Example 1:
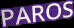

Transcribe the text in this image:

PAROS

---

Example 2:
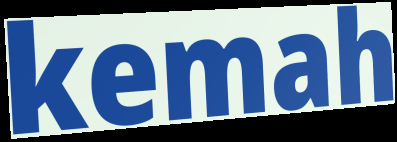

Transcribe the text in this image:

kemah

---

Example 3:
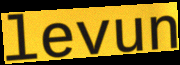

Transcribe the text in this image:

levun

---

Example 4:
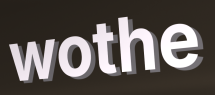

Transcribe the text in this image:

wothe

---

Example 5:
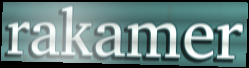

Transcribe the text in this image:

rakamer